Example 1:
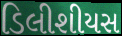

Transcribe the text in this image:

ડિલીશીયસ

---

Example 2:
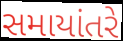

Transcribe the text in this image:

સમાયાંતરે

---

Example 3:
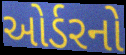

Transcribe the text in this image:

ઓર્ડરનો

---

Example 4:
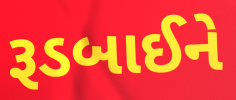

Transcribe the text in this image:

રૂડબાઈને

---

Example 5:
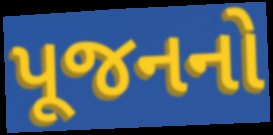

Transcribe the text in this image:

પૂજનનો